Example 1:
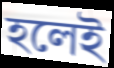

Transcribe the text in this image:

হলেই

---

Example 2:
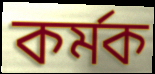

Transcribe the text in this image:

কৰ্মক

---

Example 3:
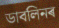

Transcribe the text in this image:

ডাবলিনৰ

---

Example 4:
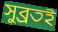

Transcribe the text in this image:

সুব্ৰতই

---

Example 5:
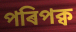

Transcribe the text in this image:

পৰিপক্ব